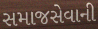
સમાજસેવાની